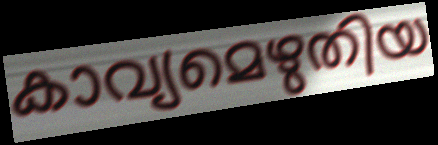
കാവ്യമെഴുതിയ